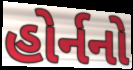
હોર્નનો